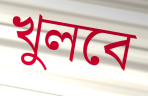
খুলবে